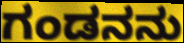
ಗಂಡನನು